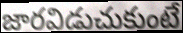
జారవిడుచుకుంటే